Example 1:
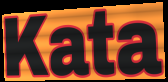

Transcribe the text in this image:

Kata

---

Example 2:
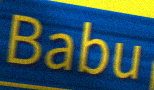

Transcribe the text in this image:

Babu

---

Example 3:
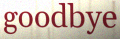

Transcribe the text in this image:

goodbye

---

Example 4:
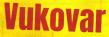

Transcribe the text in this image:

Vukovar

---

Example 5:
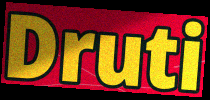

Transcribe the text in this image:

Druti